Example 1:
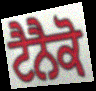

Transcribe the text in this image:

ਟੈਨੈਕੋ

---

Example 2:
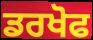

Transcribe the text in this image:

ਡਰਖੋਫ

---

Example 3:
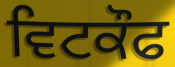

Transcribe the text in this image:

ਵਿਟਕੌਫ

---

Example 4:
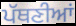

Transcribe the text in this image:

ਪੱਥਣੀਆਂ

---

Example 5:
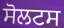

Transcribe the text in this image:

ਸੋਲਟਸ